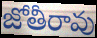
జోతీరావు